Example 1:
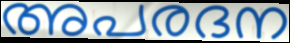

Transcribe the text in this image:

അപരദന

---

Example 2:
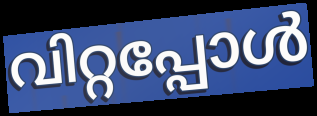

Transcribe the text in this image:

വിറ്റപ്പോൾ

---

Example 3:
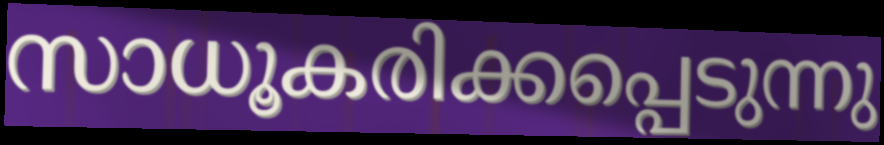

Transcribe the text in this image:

സാധൂകരിക്കപ്പെടുന്നു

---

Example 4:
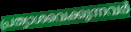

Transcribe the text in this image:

പ്രത്യാശവെക്കുന്നവർ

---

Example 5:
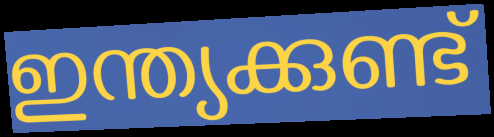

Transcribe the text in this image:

ഇന്ത്യക്കുണ്ട്